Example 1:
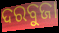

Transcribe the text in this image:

ଦରବୁଜା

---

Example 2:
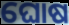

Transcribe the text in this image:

ଘୋଷ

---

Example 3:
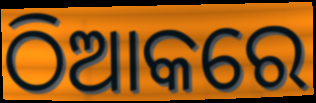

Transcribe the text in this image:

ଠିଆକରେ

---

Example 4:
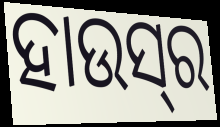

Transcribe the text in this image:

ହାଉସ୍‌ର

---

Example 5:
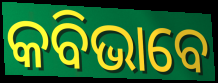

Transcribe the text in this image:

କବିଭାବେ